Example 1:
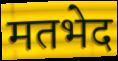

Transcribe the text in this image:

मतभेद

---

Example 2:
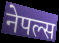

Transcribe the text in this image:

नेपल्स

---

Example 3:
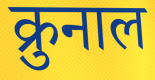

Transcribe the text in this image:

क्रुनाल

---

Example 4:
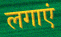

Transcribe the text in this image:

लगाएं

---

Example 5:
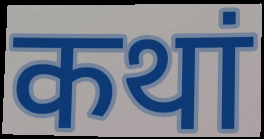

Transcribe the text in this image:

कथां